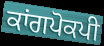
ਕਾਂਗਪੋਕਪੀ